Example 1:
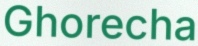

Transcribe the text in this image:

Ghorecha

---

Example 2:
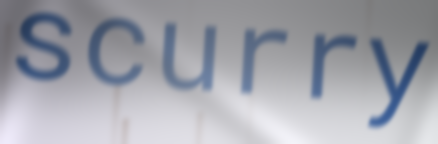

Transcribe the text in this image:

scurry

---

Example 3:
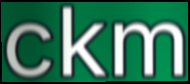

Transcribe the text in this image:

ckm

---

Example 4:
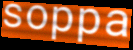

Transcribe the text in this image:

soppa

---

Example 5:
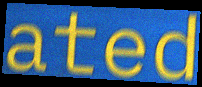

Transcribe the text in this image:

ated